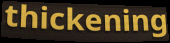
thickening